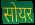
सोयर